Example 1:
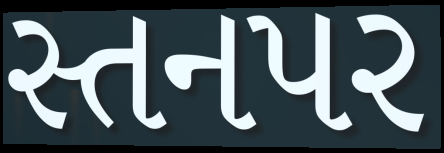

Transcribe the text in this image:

સ્તનપર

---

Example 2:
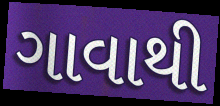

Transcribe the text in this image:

ગાવાથી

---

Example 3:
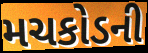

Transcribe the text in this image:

મચકોડની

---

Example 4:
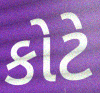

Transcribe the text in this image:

કોટે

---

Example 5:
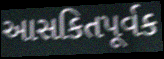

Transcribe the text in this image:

આસકિતપૂર્વક